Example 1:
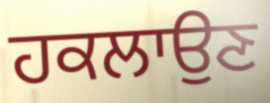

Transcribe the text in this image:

ਹਕਲਾਉਣ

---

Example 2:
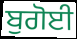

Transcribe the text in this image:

ਬੁਗੋਈ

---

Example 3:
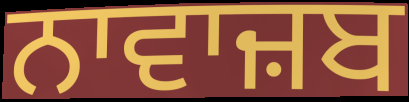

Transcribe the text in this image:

ਨਾਵਾਜ਼ਬ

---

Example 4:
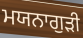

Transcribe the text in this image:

ਮਯਨਾਗੁੜੀ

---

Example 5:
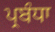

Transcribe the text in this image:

ਪ੍ਰਬੰਧਾ